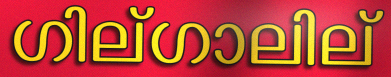
ഗില്ഗാലില്